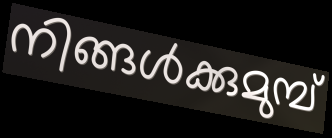
നിങ്ങൾക്കുമുമ്പ്